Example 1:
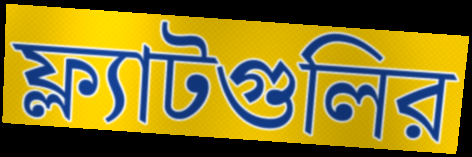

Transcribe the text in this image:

ফ্ল্যাটগুলির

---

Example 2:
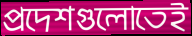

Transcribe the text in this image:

প্রদেশগুলোতেই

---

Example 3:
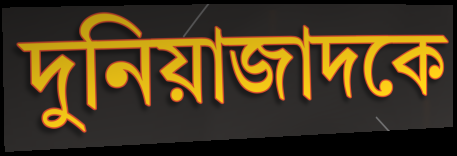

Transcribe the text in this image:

দুনিয়াজাদকে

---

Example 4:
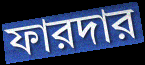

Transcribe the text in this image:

ফারদার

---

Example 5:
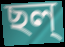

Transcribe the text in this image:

ছল্